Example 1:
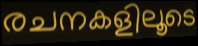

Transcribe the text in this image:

രചനകളിലൂടെ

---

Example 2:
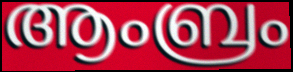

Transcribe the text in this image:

ആംബ്രം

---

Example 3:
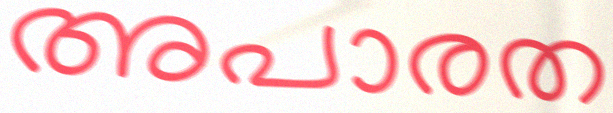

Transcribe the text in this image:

അപാരത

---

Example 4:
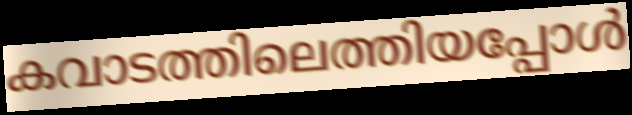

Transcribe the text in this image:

കവാടത്തിലെത്തിയപ്പോൾ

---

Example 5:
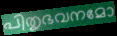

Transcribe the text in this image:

പിതൃഭവനമോ